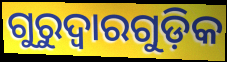
ଗୁରୁଦ୍ବାରଗୁଡ଼ିକ